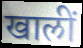
खालीं